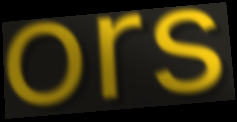
ors